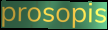
prosopis